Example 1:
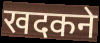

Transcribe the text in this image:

खदकने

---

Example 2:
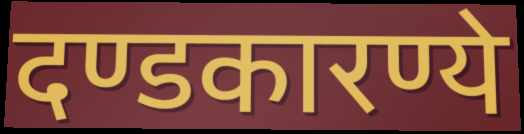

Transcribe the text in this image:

दण्डकारण्ये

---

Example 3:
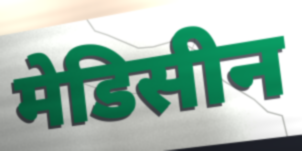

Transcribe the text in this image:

मेडिसीन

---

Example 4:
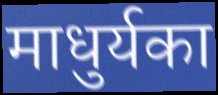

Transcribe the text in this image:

माधुर्यका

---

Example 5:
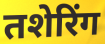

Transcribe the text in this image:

तशेरिंग